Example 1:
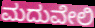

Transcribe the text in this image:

ಮದುವೇಲಿ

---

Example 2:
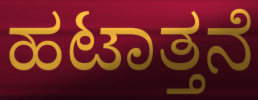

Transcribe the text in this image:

ಹಟಾತ್ತನೆ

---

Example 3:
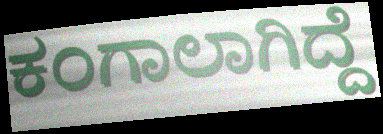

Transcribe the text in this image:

ಕಂಗಾಲಾಗಿದ್ದೆ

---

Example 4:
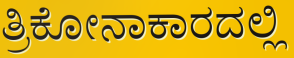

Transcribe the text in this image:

ತ್ರಿಕೋನಾಕಾರದಲ್ಲಿ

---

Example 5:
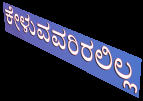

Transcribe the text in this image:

ಕೇಳುವವರಿರಲಿಲ್ಲ